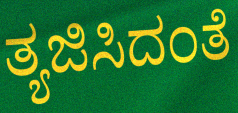
ತ್ಯಜಿಸಿದಂತೆ